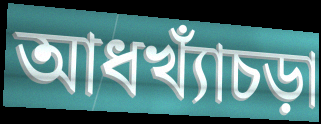
আধখ্যাঁচড়া